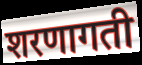
शरणागती